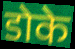
डोके